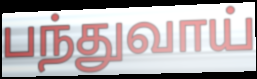
பந்துவாய்